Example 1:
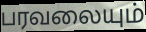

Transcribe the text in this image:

பரவலையும்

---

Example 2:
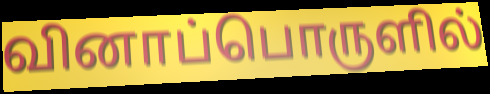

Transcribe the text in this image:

வினாப்பொருளில்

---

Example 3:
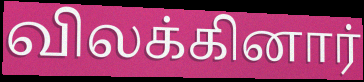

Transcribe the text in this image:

விலக்கினார்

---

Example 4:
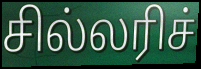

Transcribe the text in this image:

சில்லரிச்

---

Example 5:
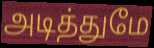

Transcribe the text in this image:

அடித்துமே